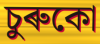
চুৰুকো